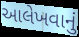
આલેખવાનું